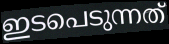
ഇടപെടുന്നത്